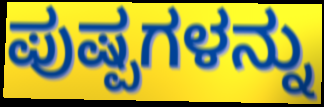
ಪುಷ್ಪಗಳನ್ನು